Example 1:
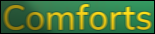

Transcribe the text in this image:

Comforts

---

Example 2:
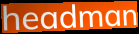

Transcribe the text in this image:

headman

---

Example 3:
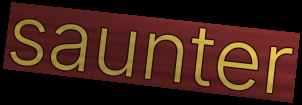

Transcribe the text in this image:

saunter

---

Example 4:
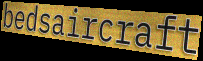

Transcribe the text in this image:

bedsaircraft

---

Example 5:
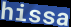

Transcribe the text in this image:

hissa